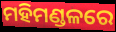
ମହିମଣ୍ଡଳରେ